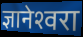
ज्ञानेश्वरा